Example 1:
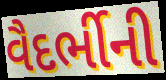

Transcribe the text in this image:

વૈદર્ભીની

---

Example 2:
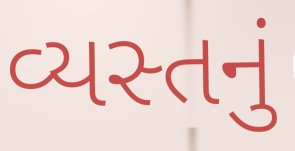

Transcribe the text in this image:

વ્યસ્તનું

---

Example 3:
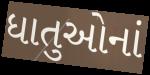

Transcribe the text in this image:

ધાતુઓનાં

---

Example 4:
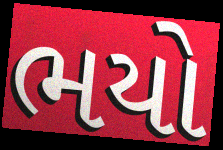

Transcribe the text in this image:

ભયો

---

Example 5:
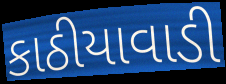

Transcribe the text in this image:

કાઠીયાવાડી